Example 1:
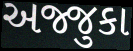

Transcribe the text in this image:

અજ્જુકા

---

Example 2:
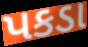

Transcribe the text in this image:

પકડા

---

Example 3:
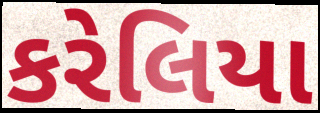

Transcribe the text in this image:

કરેલિયા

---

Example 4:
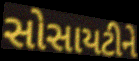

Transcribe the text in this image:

સોસાયટીને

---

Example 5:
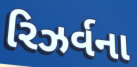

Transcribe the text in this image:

રિઝર્વના